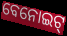
ବେନୋଇଟ୍